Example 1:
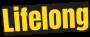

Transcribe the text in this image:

Lifelong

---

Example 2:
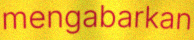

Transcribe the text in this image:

mengabarkan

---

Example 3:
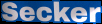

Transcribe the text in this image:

Secker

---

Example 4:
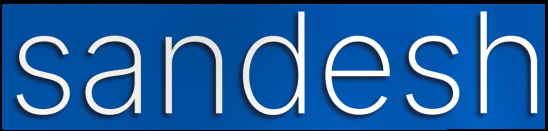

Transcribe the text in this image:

sandesh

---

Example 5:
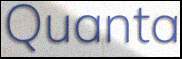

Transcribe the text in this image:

Quanta